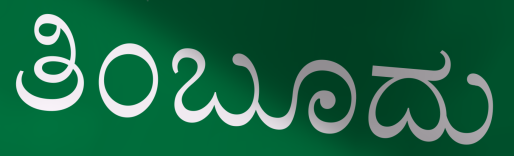
ತಿಂಬೂದು